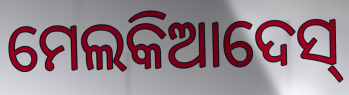
ମେଲକିଆଦେସ୍